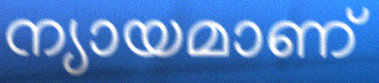
ന്യായമാണ്